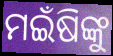
ମଇଁଷିଙ୍କୁ